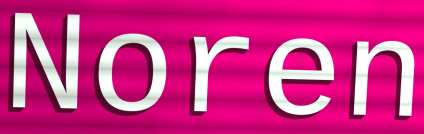
Noren